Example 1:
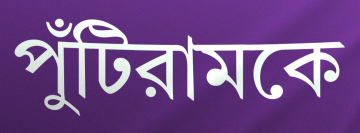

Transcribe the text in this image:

পুঁটিরামকে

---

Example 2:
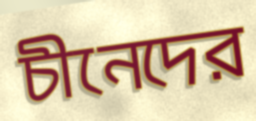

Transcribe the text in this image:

চীনেদের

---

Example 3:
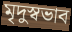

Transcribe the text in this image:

মৃদুস্বভাব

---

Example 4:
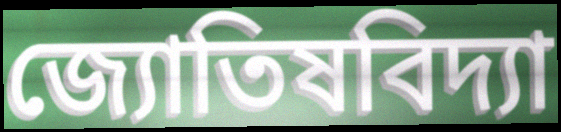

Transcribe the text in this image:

জ্যোতিষবিদ্যা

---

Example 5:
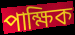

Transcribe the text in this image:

পাক্ষিক